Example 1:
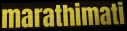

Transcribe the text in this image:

marathimati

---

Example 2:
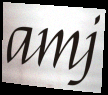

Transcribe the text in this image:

amj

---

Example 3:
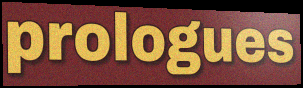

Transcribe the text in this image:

prologues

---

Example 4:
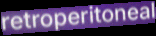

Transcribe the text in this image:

retroperitoneal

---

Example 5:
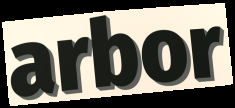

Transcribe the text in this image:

arbor